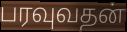
பரவுவதன்